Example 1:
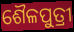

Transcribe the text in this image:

ଶୈଳପୁତ୍ରୀ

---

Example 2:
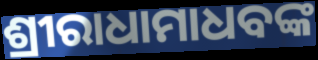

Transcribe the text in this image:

ଶ୍ରୀରାଧାମାଧବଙ୍କ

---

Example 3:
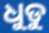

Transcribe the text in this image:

ଧୁଡୁ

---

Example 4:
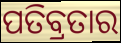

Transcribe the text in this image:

ପତିବ୍ରତାର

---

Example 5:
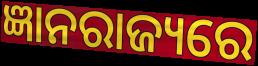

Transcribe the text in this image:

ଜ୍ଞାନରାଜ୍ୟରେ